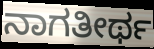
ನಾಗತೀರ್ಥ